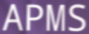
APMS